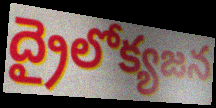
ద్రైలోక్యజన